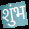
शुंभ